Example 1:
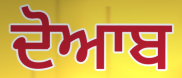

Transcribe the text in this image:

ਦੋਆਬ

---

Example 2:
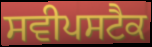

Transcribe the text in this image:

ਸਵੀਪਸਟੈਕ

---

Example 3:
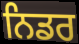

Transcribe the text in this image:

ਨਿਡਰ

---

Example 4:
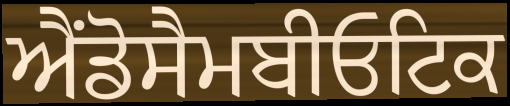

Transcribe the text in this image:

ਐਂਡੋਸੈਮਬੀਓਟਿਕ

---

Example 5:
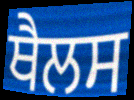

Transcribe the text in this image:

ਥੈਲਸ